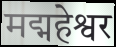
मद्महेश्वर